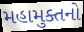
મહામુક્તનો